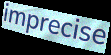
imprecise